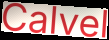
Calvel